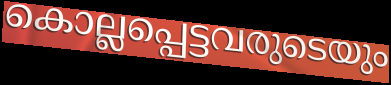
കൊല്ലപ്പെട്ടവരുടെയും